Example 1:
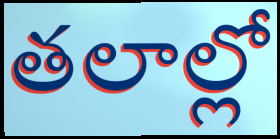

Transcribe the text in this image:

తలాల్లో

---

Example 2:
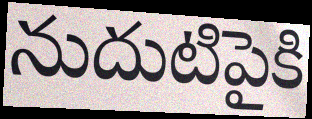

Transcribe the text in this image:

నుదుటిపైకి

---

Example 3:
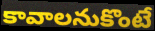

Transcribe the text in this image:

కావాలనుకొంటే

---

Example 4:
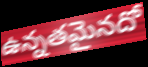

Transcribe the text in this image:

ఉన్నతమైనదో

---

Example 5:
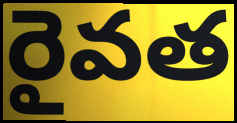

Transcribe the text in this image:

రైవత